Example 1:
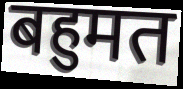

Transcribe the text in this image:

बहुमत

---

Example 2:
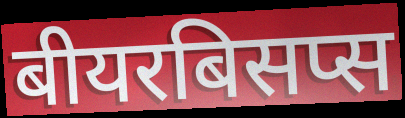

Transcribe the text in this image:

बीयरबिसप्स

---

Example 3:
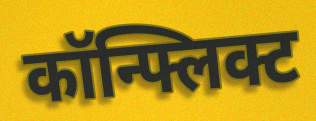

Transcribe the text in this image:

कॉन्फ्लिक्ट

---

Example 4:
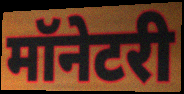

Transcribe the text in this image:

मॉनेटरी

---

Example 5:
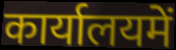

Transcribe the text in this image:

कार्यालयमें